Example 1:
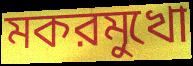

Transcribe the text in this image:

মকরমুখো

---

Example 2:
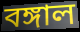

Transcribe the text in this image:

বঙ্গাল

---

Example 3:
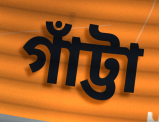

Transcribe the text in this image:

গাঁট্টা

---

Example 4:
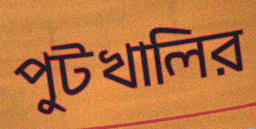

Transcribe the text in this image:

পুটখালির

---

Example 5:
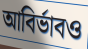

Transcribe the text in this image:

আবির্ভাবও